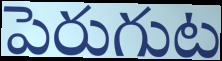
పెరుగుట